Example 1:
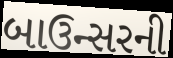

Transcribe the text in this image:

બાઉન્સરની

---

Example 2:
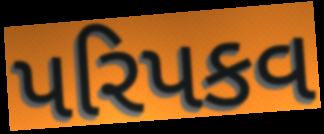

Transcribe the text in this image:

પરિપકવ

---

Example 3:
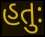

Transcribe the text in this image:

હતુઃ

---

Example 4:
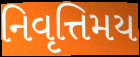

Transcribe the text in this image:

નિવૃત્તિમય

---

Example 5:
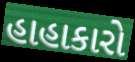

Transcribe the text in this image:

હાહાકારો